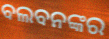
ବଲବନଙ୍କର